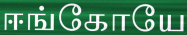
ஈங்கோயே